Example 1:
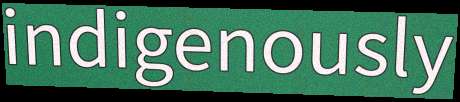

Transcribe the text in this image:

indigenously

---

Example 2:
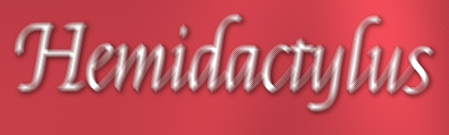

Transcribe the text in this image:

Hemidactylus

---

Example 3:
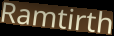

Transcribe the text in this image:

Ramtirth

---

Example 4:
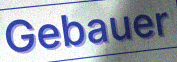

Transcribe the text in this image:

Gebauer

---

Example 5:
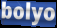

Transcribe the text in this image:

bolyo